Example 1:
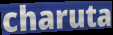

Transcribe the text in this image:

charuta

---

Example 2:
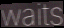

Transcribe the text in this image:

waits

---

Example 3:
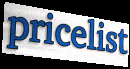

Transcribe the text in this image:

pricelist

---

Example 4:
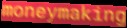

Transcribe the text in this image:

moneymaking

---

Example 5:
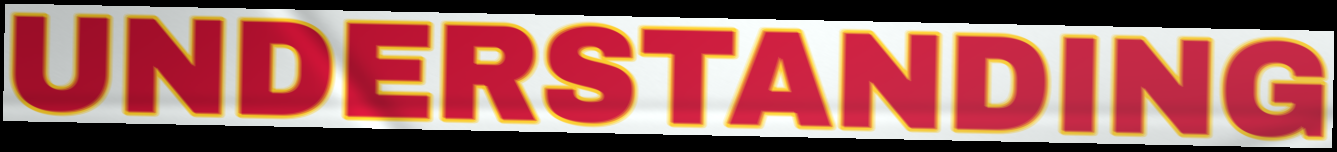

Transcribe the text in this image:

UNDERSTANDING